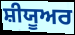
ਸ਼ੀਯੂਅਰ